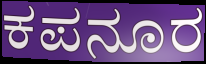
ಕಪನೂರ